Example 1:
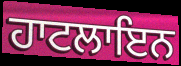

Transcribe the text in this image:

ਹਾਟਲਾਇਨ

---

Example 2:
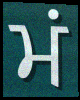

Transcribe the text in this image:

ਮਂ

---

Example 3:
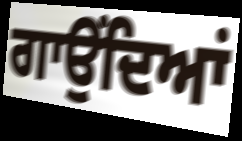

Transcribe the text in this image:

ਗਾਉਂਦਿਆਂ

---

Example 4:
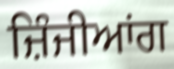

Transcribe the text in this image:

ਜ਼ਿੰਜੀਆਂਗ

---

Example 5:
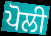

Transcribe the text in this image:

ਪੋਲੀ